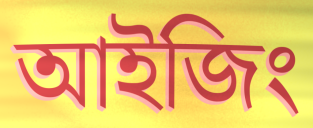
আইজিং